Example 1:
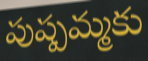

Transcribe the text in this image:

పుష్పమ్మకు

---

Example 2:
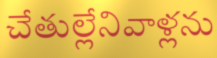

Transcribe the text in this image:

చేతుల్లేనివాళ్లను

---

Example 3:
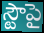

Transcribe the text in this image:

స్టౌపై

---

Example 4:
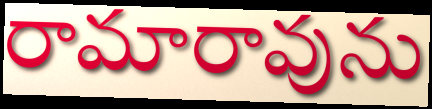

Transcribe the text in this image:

రామారావును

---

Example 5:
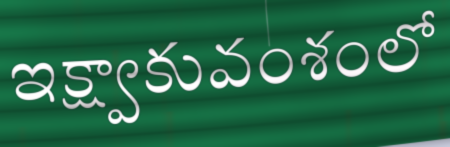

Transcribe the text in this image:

ఇక్ష్వాకువంశంలో